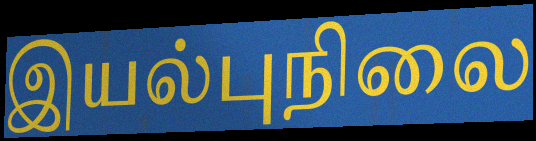
இயல்புநிலை